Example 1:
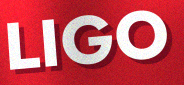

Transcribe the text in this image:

LIGO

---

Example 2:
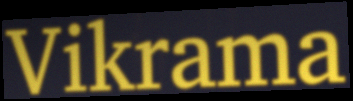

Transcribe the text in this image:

Vikrama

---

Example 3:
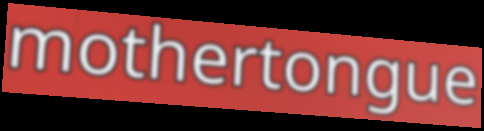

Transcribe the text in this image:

mothertongue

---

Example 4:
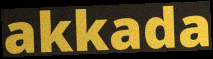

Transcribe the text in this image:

akkada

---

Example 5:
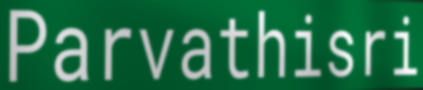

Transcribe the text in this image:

Parvathisri